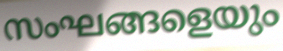
സംഘങ്ങളെയും